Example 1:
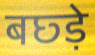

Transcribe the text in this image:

बछ्ड़े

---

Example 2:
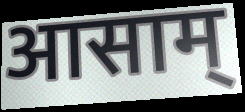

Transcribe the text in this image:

आसाम्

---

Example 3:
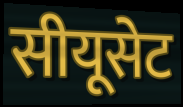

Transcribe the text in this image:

सीयूसेट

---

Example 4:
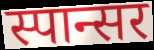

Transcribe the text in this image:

स्पान्सर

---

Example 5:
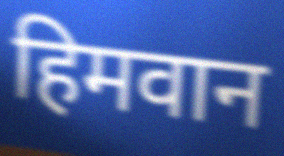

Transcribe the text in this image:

हिमवान